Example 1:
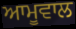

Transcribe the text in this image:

ਆਮੂਵਾਲ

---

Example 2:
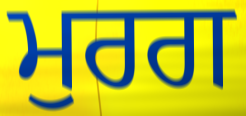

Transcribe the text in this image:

ਮੁਰਗ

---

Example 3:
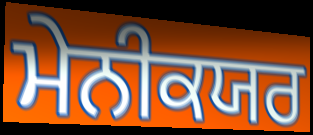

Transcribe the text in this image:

ਮੇਨੀਕਯਰ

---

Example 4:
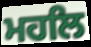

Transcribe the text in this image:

ਮਹਲਿ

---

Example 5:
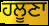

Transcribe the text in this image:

ਹਲੂਣਾ